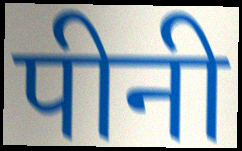
पीनी